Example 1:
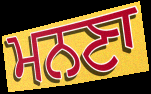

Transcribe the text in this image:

ਮਨਣਾ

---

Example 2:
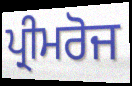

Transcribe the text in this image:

ਪ੍ਰੀਮਰੋਜ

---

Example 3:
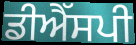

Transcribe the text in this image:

ਡੀਐੱਸਪੀ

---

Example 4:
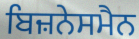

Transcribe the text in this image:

ਬਿਜ਼ਨੇਸਮੈਨ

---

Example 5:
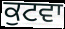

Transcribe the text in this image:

ਕੁਟਵਾ